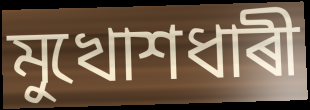
মুখোশধাৰী